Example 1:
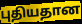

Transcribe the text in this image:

புதியதான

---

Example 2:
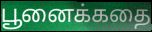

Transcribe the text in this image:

பூனைக்கதை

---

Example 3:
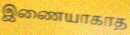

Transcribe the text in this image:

இணையாகாத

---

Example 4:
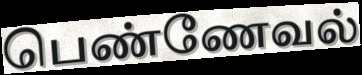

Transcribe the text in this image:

பெண்ணேவல்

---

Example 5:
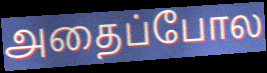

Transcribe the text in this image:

அதைப்போல